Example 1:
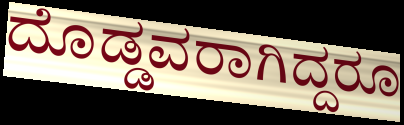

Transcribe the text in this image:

ದೊಡ್ಡವರಾಗಿದ್ದರೂ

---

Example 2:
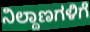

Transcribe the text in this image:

ನಿಲ್ದಾಣಗಳಿಗೆ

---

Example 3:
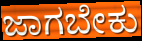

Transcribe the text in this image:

ಜಾಗಬೇಕು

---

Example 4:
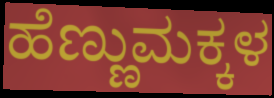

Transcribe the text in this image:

ಹೆಣ್ಣುಮಕ್ಕಳ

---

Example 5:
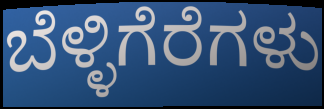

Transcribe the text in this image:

ಬೆಳ್ಳಿಗೆರೆಗಳು